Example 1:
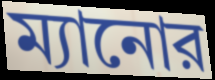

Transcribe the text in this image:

ম্যানোর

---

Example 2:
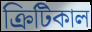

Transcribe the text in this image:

ক্রিটিকাল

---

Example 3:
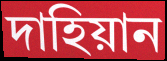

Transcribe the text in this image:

দাহিয়ান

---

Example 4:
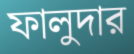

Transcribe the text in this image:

ফালুদার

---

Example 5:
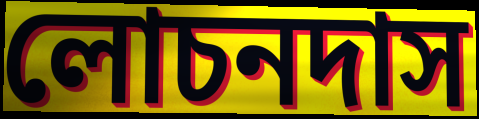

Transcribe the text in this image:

লোচনদাস